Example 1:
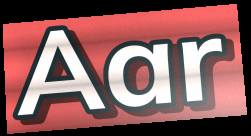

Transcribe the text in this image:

Aar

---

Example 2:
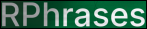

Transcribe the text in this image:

RPhrases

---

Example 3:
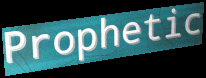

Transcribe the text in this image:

Prophetic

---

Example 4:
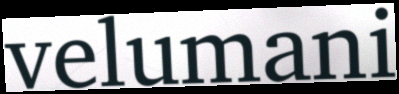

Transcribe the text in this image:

velumani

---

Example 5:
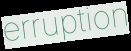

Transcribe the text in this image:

erruption